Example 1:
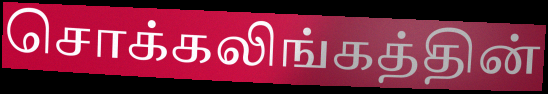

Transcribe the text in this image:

சொக்கலிங்கத்தின்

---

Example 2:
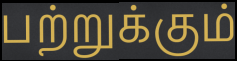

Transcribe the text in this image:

பற்றுக்கும்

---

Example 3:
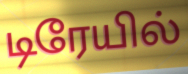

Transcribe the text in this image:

டிரேயில்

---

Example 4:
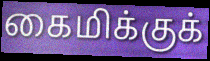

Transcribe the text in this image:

கைமிக்குக்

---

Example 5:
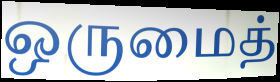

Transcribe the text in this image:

ஒருமைத்